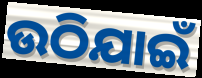
ଉଠିଯାଇଁ